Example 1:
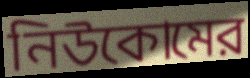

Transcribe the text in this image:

নিউকোমের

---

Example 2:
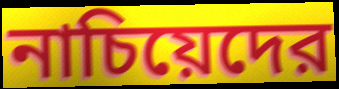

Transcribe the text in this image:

নাচিয়েদের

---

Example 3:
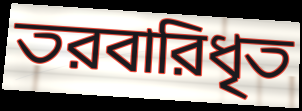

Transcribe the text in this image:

তরবারিধৃত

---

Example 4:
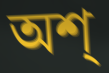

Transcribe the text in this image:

অশ্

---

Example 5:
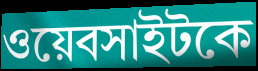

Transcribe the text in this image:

ওয়েবসাইটকে